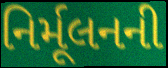
નિર્મૂલનની